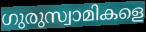
ഗുരുസ്വാമികളെ